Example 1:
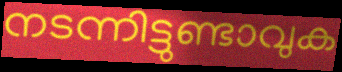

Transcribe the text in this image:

നടന്നിട്ടുണ്ടാവുക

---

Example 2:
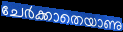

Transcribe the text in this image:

ചേർക്കാതെയാണു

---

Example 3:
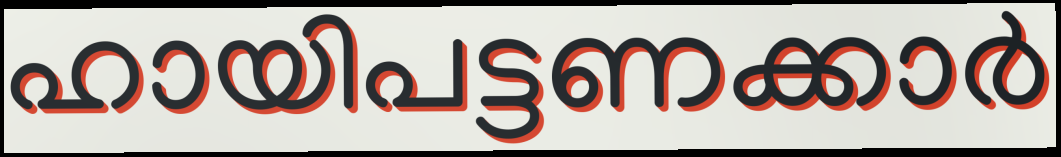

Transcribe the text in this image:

ഹായിപട്ടണക്കാർ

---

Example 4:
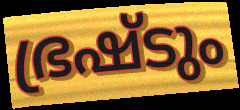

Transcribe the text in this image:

ഭ്രഷ്ടും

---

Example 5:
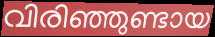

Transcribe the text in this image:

വിരിഞ്ഞുണ്ടായ